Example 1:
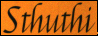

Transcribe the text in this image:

Sthuthi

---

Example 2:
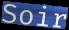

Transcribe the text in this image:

Soir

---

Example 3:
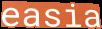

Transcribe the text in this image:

easia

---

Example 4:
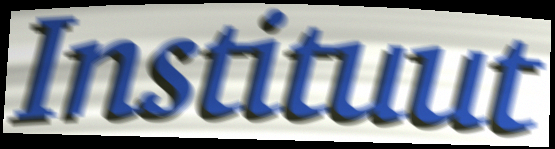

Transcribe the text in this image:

Instituut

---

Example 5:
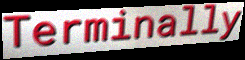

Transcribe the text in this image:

Terminally